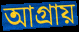
আগ্রায়